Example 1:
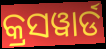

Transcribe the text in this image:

କ୍ରସୱାର୍ଡ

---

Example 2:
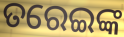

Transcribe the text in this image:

ତରେଇଙ୍କ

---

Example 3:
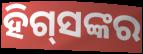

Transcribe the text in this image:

ହିଗ୍‌ସଙ୍କର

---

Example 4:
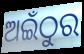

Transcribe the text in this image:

ଅଇଁଠୁର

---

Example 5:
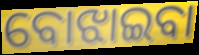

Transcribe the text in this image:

ବୋଝାଇବା